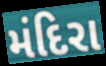
મંદિરા